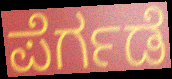
ಪೆರ್ಗಡೆ